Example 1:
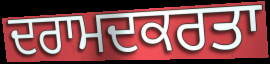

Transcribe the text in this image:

ਦਰਾਮਦਕਰਤਾ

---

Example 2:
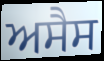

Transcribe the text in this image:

ਅਸੈਸ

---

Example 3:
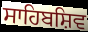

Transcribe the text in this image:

ਸਾਹਿਬਸ਼ਿਵ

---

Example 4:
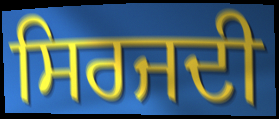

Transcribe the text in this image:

ਸਿਰਜਦੀ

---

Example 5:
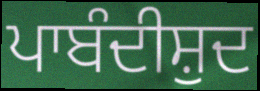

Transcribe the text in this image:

ਪਾਬੰਦੀਸ਼ੁਦ